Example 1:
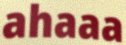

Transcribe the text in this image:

ahaaa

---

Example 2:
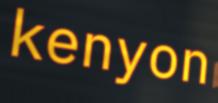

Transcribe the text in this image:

kenyon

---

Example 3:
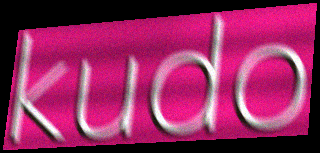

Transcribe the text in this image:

kudo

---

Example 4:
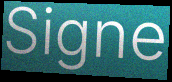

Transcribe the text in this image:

Signe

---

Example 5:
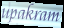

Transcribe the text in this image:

upakram